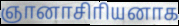
ஞானாசிரியனாக